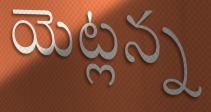
యెట్లన్న